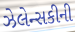
ઝેલેન્સકીની